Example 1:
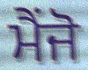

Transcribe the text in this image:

ਮੈਂਜੋ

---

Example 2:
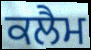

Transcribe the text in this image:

ਕਲੈਮ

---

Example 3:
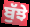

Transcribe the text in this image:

ਬੁੱਝੇ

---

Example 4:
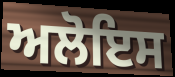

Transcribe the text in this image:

ਅਲੋਇਸ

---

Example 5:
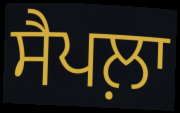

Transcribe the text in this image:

ਸੈਪਲ਼ਾ